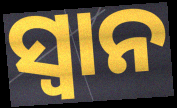
ସ୍ୱାନ